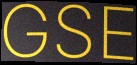
GSE